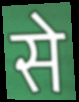
से